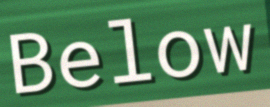
Below